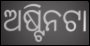
ଅଷ୍ଟିନଟା